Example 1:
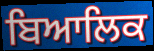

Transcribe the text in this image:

ਬਿਆਲਿਕ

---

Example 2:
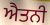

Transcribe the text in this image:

ਐਤਨੀ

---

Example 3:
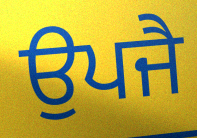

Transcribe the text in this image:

ਉਪਜੈ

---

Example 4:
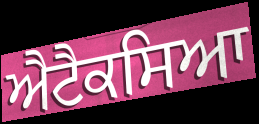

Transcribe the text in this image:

ਐਟੈਕਸਿਆ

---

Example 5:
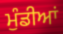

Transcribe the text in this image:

ਮੁੰਡੀਆਂ